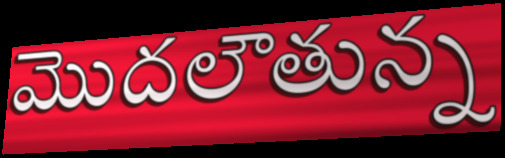
మొదలౌతున్న